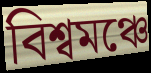
বিশ্বমঞ্চে